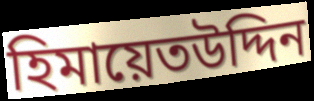
হিমায়েতউদ্দিন